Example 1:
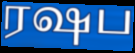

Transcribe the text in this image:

ரஷப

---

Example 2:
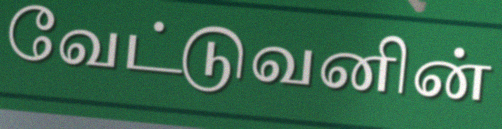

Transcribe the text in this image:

வேட்டுவனின்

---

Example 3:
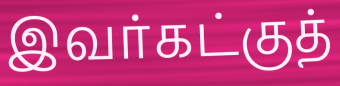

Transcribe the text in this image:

இவர்கட்குத்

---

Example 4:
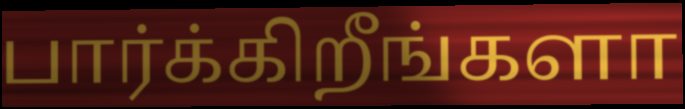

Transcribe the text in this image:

பார்க்கிறீங்களா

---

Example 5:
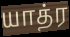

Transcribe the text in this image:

யாத்ர